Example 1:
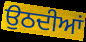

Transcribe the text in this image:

ਉਠਦੀਆਂ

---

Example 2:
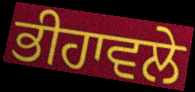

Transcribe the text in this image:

ਭੀਹਾਵਲੇ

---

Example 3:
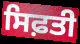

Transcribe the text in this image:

ਸਿਫ਼ਤੀ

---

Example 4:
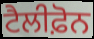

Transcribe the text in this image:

ਟੈਲੀਫ਼ੋਨ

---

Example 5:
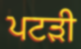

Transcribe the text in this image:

ਪਟੜੀ